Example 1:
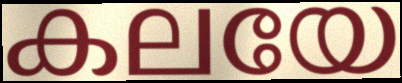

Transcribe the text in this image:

കലയേ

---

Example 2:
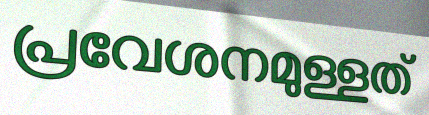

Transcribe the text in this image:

പ്രവേശനമുള്ളത്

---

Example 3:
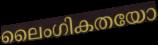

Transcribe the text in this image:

ലൈംഗികതയോ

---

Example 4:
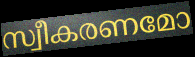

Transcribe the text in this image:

സ്വീകരണമോ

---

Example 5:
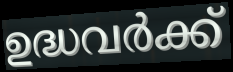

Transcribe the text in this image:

ഉദ്ധവർക്ക്